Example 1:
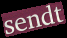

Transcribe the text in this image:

sendt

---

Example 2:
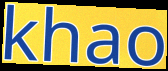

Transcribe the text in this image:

khao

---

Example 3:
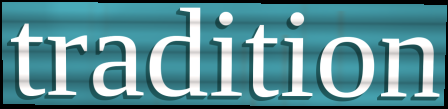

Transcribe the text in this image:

tradition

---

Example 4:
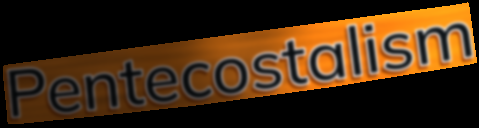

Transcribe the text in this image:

Pentecostalism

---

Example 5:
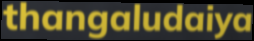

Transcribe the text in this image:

thangaludaiya